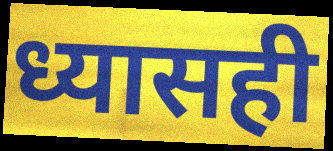
ध्यासही